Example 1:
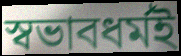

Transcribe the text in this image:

স্বভাবধর্মই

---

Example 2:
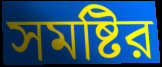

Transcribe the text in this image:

সমষ্টির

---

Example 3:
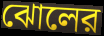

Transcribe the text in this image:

ঝোলের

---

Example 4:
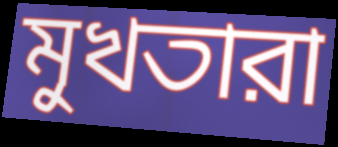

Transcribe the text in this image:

মুখতারা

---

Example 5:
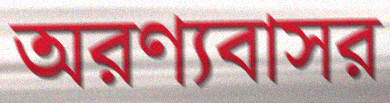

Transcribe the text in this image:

অরণ্যবাসর